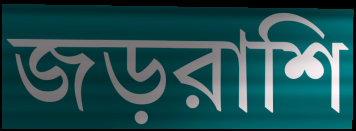
জড়রাশি